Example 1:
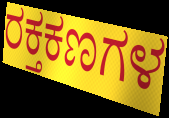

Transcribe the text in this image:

ರಕ್ತಕಣಗಳ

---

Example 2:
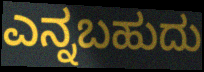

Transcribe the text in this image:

ಎನ್ನಬಹುದು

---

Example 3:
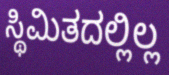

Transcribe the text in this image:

ಸ್ಥಿಮಿತದಲ್ಲಿಲ್ಲ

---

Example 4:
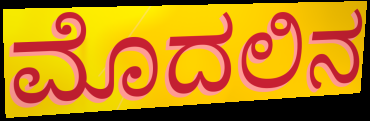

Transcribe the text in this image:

ಮೊದಲಿನ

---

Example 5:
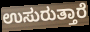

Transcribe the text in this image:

ಉಸುರುತ್ತಾರೆ